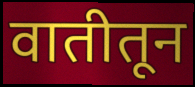
वातीतून